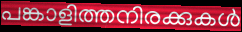
പങ്കാളിത്തനിരക്കുകൾ